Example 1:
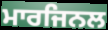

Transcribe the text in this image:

ਮਾਰਜਿਨਲ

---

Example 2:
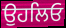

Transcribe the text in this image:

ਉਹਲਿਓ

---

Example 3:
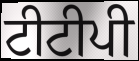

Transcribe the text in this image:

ਟੀਟੀਪੀ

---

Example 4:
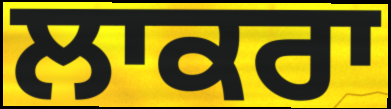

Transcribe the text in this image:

ਲਾਕਰਾ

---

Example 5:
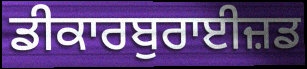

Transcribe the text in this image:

ਡੀਕਾਰਬੁਰਾਈਜ਼ਡ